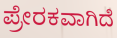
ಪ್ರೇರಕವಾಗಿದೆ